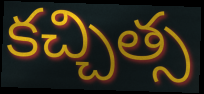
కచ్చిత్స